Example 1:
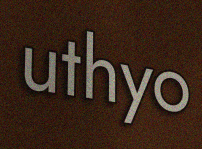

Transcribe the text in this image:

uthyo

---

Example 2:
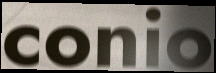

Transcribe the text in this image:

conio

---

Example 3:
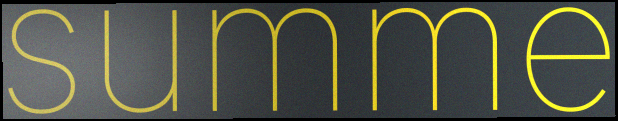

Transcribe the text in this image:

summe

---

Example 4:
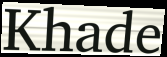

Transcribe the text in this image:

Khade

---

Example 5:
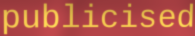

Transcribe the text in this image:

publicised